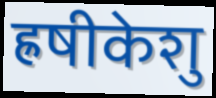
ह्रषीकेशु